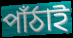
পাঁঠাই